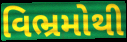
વિભ્રમોથી